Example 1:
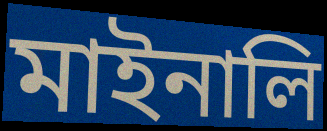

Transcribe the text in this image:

মাইনালি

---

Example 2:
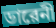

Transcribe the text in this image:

ডারেনী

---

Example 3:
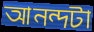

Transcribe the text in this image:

আনন্দটা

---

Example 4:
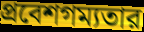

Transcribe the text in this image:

প্রবেশগম্যতার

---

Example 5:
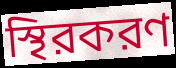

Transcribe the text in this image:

স্থিরকরণ